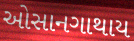
ઓસાનગાથાય